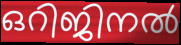
ഒറിജിനൽ